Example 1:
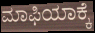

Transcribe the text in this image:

ಮಾಫಿಯಾಕ್ಕೆ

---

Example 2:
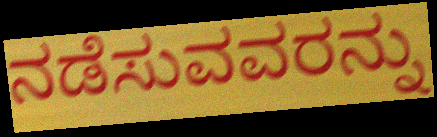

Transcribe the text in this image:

ನಡೆಸುವವರನ್ನು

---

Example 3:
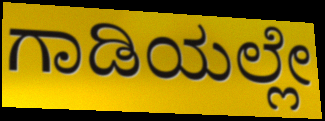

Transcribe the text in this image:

ಗಾಡಿಯಲ್ಲೇ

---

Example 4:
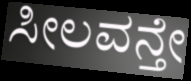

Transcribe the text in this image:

ಸೀಲವನ್ತೇ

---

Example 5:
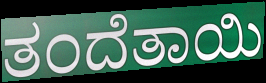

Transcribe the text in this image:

ತಂದೆತಾಯಿ